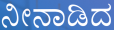
ನೀನಾಡಿದ